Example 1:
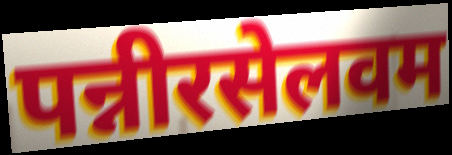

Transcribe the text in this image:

पन्नीरसेलवम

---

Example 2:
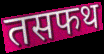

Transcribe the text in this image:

तसफथ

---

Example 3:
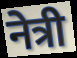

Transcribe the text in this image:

नेत्री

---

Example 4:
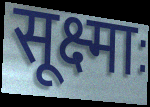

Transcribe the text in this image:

सूक्ष्माः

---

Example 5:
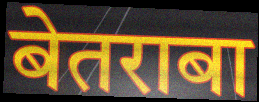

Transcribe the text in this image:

बेतराबा